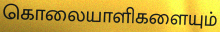
கொலையாளிகளையும்